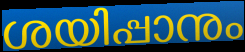
ശയിപ്പാനും